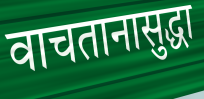
वाचतानासुद्धा